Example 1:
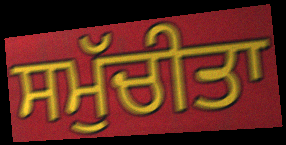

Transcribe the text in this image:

ਸਮੁੱਚੀਤਾ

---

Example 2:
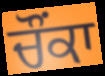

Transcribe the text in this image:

ਚੌਂਕਾ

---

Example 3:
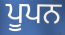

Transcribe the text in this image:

ਪੂਪਨ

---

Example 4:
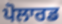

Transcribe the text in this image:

ਪੋਲਾਰਡ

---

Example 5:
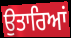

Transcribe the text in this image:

ਉਤਾਰਿਆਂ